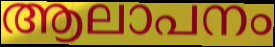
ആലാപനം